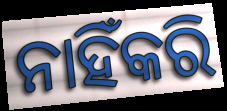
ନାହିଁକରି